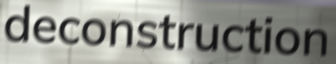
deconstruction